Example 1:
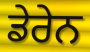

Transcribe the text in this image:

ਡੇਰੇਨ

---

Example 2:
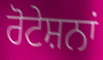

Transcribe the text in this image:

ਰੋਟੇਸ਼ਨਾਂ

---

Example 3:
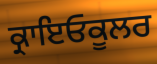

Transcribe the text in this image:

ਕ੍ਰਾਇਓਕੂਲਰ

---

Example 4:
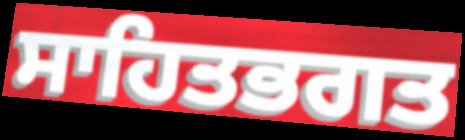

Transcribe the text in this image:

ਸਾਹਿਤਭਗਤ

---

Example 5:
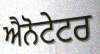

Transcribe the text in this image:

ਐਨੋਟੇਟਰ